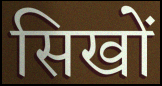
सिखों